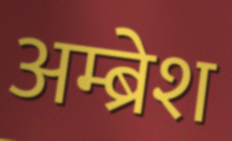
अम्ब्रेश